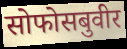
सोफोसबुवीर